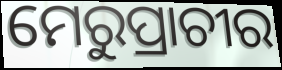
ମେରୁପ୍ରାଚୀର